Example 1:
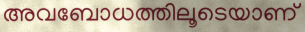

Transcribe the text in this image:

അവബോധത്തിലൂടെയാണ്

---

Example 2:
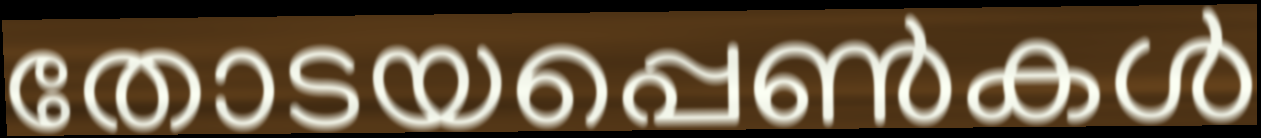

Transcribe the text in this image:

തോടയപ്പെൺകൾ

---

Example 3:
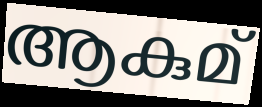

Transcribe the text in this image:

ആകുമ്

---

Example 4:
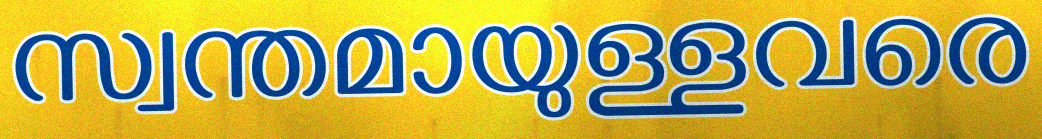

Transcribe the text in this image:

സ്വന്തമായുള്ളവരെ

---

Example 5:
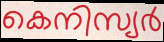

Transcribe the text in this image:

കെനിസ്യർ